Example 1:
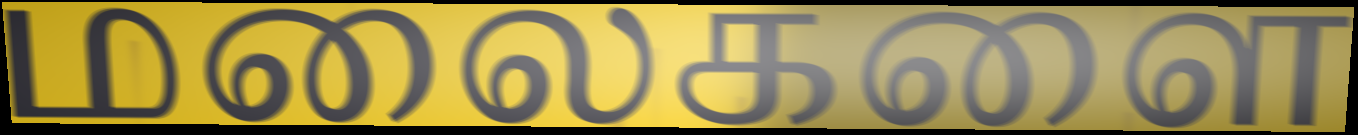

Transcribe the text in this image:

மலைகளை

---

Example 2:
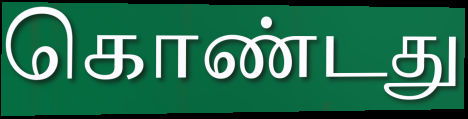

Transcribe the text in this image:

கொண்டது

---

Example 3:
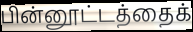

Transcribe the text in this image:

பின்னூட்டத்தைக்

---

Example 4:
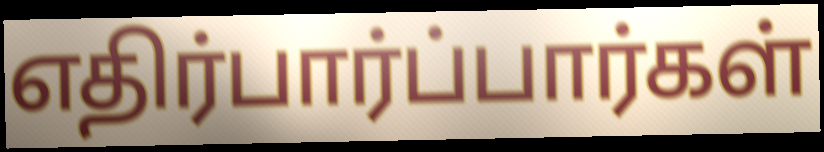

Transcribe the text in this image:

எதிர்பார்ப்பார்கள்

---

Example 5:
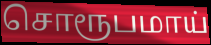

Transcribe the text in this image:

சொரூபமாய்